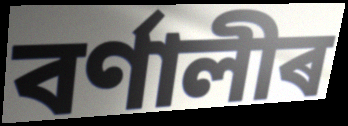
বৰ্ণালীৰ